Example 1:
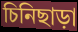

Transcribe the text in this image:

চিনিছাড়া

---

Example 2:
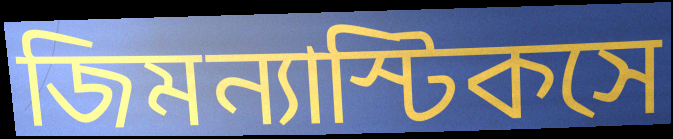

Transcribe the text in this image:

জিমন্যাস্টিকসে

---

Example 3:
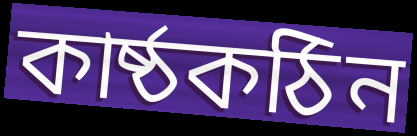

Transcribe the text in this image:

কাষ্ঠকঠিন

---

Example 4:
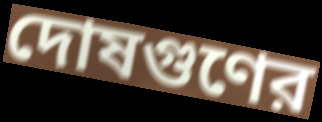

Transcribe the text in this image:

দোষগুণের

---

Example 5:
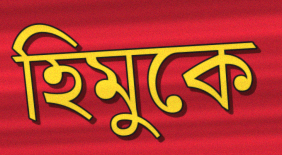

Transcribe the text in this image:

হিমুকে